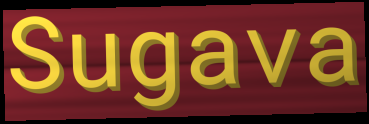
Sugava